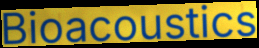
Bioacoustics